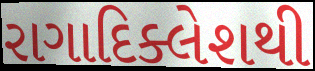
રાગાદિક્લેશથી